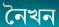
নৈখন